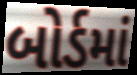
બોર્ડમાં